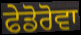
ਫੇਡੋਰੋਵਾ